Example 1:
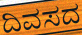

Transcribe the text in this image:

ದಿವಸದ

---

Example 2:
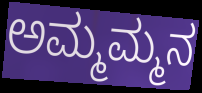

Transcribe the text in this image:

ಅಮ್ಮಮ್ಮನ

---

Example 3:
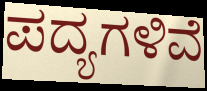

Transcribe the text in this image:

ಪದ್ಯಗಳಿವೆ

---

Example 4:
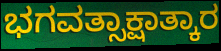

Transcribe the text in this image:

ಭಗವತ್ಸಾಕ್ಷಾತ್ಕಾರ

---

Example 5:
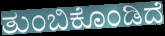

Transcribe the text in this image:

ತುಂಬಿಕೊಂಡಿದೆ